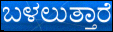
ಬಳಲುತ್ತಾರೆ